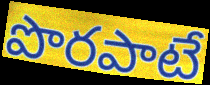
పొరపాటే